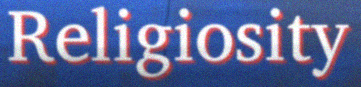
Religiosity